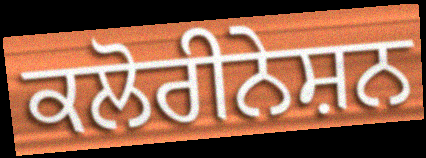
ਕਲੋਰੀਨੇਸ਼ਨ